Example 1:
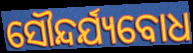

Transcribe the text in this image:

ସୌନ୍ଦର୍ଯ୍ୟବୋଧ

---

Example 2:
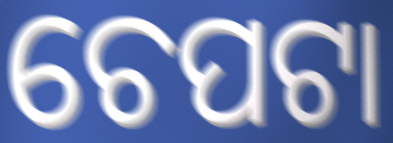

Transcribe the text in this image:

ଚେପଟା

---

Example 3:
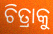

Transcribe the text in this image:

ଚିତ୍ରାକୁ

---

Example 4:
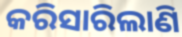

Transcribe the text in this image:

କରିସାରିଲାଣି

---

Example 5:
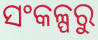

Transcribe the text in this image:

ସଂକଳ୍ପରୁ